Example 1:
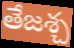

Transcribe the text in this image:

తేజశ్చ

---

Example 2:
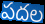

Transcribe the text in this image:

పదల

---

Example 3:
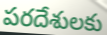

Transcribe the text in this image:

పరదేశులకు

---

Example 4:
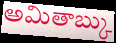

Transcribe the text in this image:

అమితాబ్కు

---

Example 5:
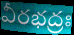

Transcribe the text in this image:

వీరభద్రః